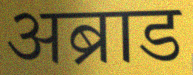
अब्राड